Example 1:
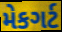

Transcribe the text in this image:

મેકગર્ટ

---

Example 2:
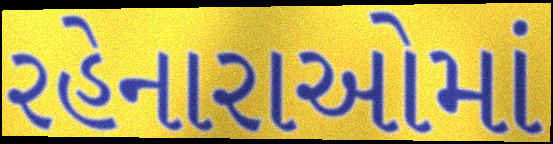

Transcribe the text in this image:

રહેનારાઓમાં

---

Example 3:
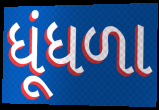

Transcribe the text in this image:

ધૂંધળા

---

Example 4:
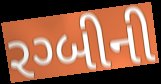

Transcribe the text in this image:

રગ્બીની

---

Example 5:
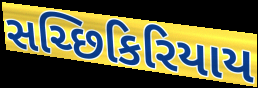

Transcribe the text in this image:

સચ્છિકિરિયાય